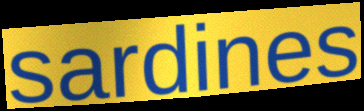
sardines